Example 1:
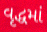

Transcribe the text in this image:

વૃદ્ધમાં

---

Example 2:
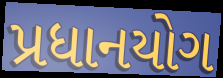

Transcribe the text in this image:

પ્રધાનયોગ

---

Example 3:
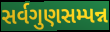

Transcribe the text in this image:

સર્વગુણસમ્પન્ન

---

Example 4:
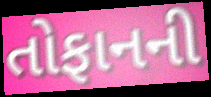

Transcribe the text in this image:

તોફાનની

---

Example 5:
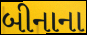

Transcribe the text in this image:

બીનાના